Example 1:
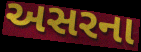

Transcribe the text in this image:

અસરના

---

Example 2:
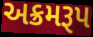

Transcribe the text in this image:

અક્રમરૂપ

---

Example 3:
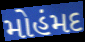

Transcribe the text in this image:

મોહંમદ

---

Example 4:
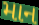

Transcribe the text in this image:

માન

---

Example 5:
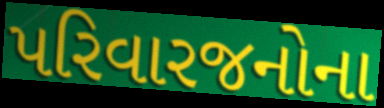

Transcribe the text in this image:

પરિવારજનોના